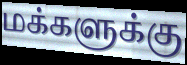
மக்களுக்கு